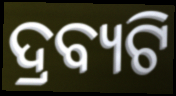
ଦ୍ରବ୍ୟଟି